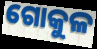
ଗୋକୁଳ